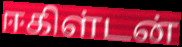
ஈகிள்டன்